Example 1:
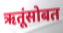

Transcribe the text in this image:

ऋतूंसोबत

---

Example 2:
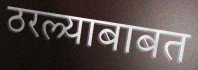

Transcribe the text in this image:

ठरल्याबाबत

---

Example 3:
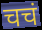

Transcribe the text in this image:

चचं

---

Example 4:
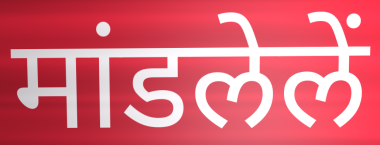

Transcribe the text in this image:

मांडलेलें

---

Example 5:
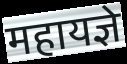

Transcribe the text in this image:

महायज्ञे